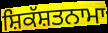
ਸ਼ਿਕੱਸ਼ਤਨਾਮਾ